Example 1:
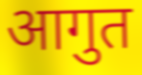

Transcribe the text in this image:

आगुत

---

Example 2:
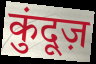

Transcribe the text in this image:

कुंदूज़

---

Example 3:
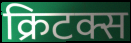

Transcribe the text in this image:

क्रिटक्स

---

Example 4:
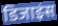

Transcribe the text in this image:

डिजाइंस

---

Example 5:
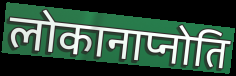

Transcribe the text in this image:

लोकानाप्नोति